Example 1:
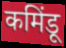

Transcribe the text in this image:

कमिंडू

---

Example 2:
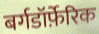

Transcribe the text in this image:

बर्गडॉर्फ़ेरिक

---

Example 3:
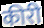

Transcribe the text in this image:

कीरी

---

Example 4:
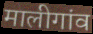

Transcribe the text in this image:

मालीगांव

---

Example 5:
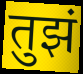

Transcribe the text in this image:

तुझं